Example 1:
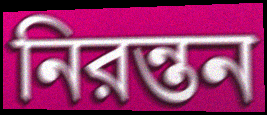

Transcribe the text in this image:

নিরন্তন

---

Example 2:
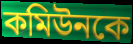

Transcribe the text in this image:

কমিউনকে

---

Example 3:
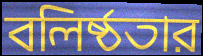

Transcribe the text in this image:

বলিষ্ঠতার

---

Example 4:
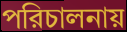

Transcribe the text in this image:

পরিচালনায়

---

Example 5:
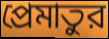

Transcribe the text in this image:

প্রেমাতুর